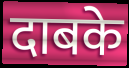
दाबके